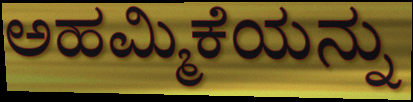
ಅಹಮ್ಮಿಕೆಯನ್ನು